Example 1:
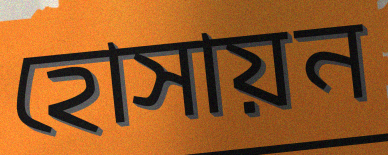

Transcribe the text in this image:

হোসায়ন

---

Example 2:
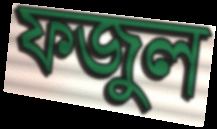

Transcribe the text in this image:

ফজুল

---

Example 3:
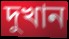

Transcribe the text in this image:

দুখান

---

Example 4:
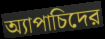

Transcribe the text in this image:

অ্যাপাচিদের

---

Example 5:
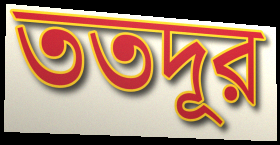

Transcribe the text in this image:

ততদূর